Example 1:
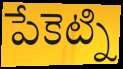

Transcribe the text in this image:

పేకెట్ని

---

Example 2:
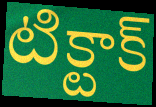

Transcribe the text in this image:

టిక్టాక్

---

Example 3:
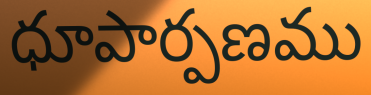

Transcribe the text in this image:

ధూపార్పణము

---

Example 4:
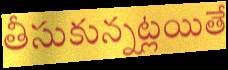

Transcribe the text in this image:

తీసుకున్నట్లయితే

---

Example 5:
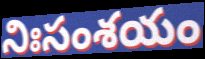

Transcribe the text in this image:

నిఃసంశయం